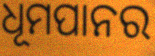
ଧୂମପାନର